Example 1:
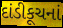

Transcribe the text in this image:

દાંડીકૂચનાં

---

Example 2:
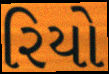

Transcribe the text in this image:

રિયો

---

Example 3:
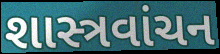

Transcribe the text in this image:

શાસ્ત્રવાંચન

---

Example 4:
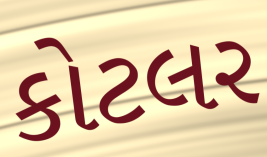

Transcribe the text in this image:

કોટલર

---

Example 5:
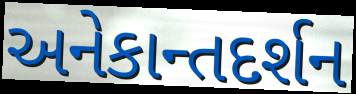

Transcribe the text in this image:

અનેકાન્તદર્શન